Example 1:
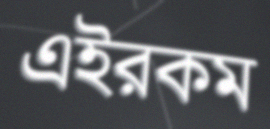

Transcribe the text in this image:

এইরকম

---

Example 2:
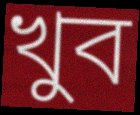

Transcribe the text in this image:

খুব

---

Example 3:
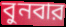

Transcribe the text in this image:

বুনবার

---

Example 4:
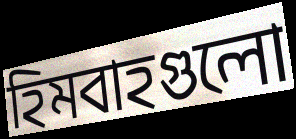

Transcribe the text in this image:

হিমবাহগুলো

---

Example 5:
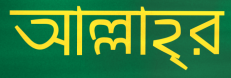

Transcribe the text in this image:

আল্লাহ্‌র